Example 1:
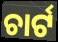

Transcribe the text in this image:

ଚାର୍ଟ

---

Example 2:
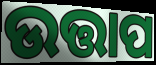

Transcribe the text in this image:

ଉତ୍ତାପ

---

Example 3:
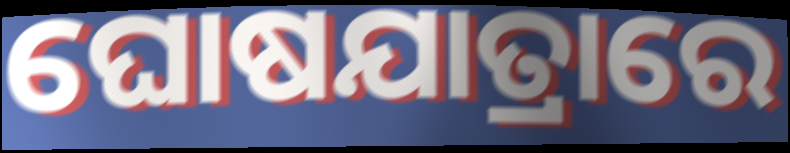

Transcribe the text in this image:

ଘୋଷଯାତ୍ରାରେ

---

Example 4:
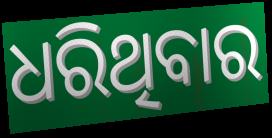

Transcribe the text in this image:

ଧରିଥିବାର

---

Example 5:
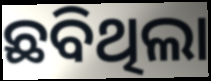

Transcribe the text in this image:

ଛବିଥିଲା